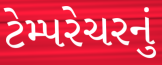
ટેમ્પરેચરનું